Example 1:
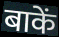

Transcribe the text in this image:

बाकें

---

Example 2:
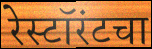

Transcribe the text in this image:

रेस्टॉरंटचा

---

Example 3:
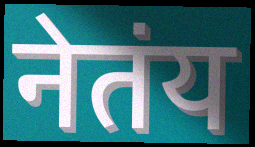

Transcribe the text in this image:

नेतंय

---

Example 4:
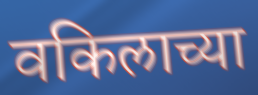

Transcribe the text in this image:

वकिलाच्या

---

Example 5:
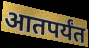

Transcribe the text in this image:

आतपर्यंत